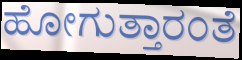
ಹೋಗುತ್ತಾರಂತೆ